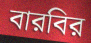
বারবির